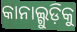
କାନାଲ୍ଗୁଡ଼ିକୁ